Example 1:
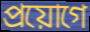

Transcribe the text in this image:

প্রয়োগে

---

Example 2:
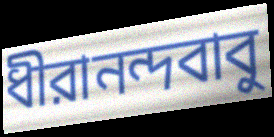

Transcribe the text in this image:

ধীরানন্দবাবু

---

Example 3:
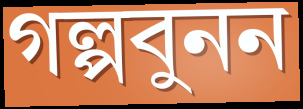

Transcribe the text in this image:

গল্পবুনন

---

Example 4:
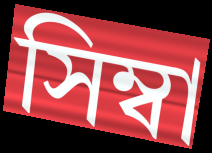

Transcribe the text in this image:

সিম্বা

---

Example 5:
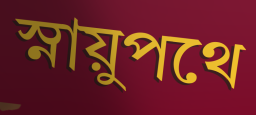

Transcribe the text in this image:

স্নায়ুপথে